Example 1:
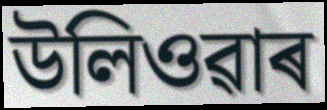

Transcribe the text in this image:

উলিওৱাৰ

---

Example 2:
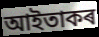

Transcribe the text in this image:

আইতাকৰ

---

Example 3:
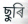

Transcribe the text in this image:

ছুৰি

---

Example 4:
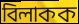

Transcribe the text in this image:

বিলাকক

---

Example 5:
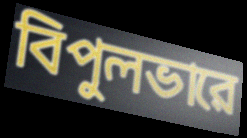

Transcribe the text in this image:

বিপুলভাৱে